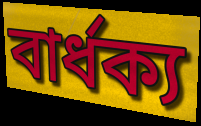
বার্ধক্য